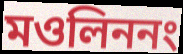
মওলিননং